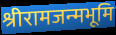
श्रीरामजन्मभूमि